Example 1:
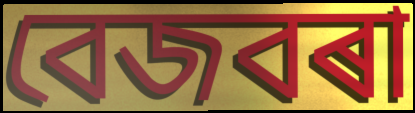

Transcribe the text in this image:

বেজবৰা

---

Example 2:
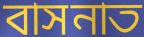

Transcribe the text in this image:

বাসনাত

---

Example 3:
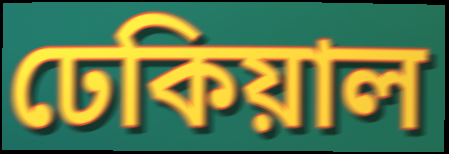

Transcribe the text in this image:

ঢেকিয়াল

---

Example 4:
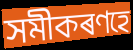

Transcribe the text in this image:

সমীকৰণহে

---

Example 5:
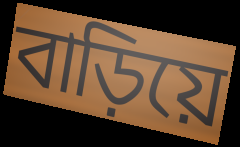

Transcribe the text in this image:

বাড়িয়ে